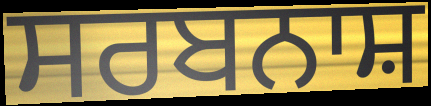
ਸਰਬਨਾਸ਼